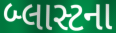
બ્લાસ્ટના